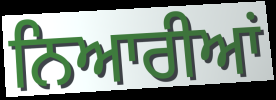
ਨਿਆਰੀਆਂ